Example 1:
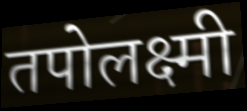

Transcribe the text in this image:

तपोलक्ष्मी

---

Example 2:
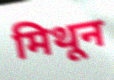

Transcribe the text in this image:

मिथून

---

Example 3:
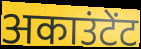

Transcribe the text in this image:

अकाउंटेंट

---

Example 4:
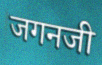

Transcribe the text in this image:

जगनजी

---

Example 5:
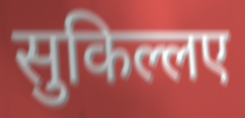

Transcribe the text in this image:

सुकिल्लए